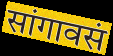
सांगावसं